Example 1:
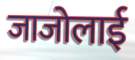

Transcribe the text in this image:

जाजोलाई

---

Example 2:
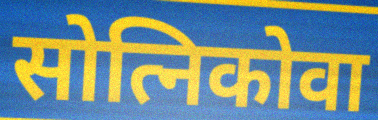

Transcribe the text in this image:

सोत्निकोवा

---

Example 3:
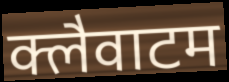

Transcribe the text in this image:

क्लैवाटम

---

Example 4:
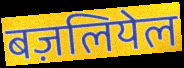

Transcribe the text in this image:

बज़लियेल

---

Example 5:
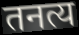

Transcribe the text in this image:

तनत्य